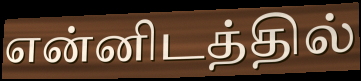
என்னிடத்தில்